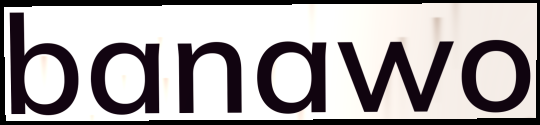
banawo